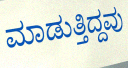
ಮಾಡುತ್ತಿದ್ದವು